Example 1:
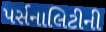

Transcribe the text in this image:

પર્સનાલિટીની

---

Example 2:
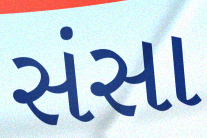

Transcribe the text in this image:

સંસા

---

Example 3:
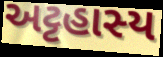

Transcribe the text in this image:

અટ્ટહાસ્ય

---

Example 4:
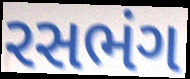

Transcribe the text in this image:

રસભંગ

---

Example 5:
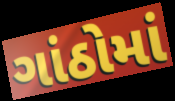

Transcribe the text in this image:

ગાંઠોમાં